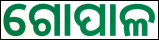
ଗୋପାଳ